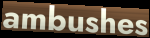
ambushes